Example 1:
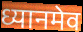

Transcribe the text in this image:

ध्यानमेव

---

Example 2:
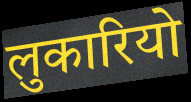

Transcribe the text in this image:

लुकारियो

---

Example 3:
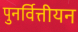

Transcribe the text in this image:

पुनर्वित्तीयन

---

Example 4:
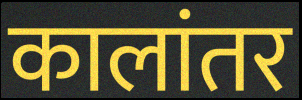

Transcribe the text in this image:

कालांतर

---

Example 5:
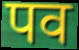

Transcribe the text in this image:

पव